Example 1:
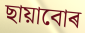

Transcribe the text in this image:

ছায়াবোৰ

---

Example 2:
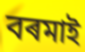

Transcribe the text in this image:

বৰমাই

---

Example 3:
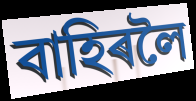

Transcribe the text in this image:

বাহিৰলৈ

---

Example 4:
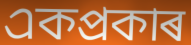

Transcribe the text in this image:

একপ্ৰকাৰ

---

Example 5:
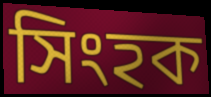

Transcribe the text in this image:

সিংহক